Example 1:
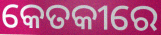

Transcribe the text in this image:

କେତକୀରେ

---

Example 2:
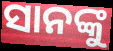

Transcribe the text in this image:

ସାନଙ୍କୁ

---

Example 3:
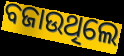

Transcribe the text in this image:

ବଜାଉଥିଲେ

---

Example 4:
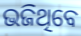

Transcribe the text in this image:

ଭଜିଥିବେ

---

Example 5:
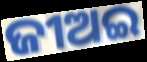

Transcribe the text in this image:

ଜୀଅଇ